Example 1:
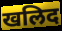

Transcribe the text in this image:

खलिद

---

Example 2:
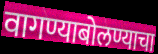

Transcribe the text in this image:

वागण्याबोलण्याचा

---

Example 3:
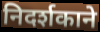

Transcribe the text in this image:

निदर्शकाने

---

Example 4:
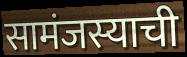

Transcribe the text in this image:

सामंजस्याची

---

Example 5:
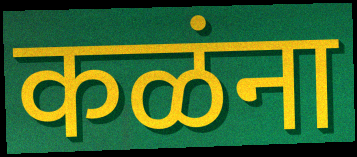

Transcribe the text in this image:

कळंना